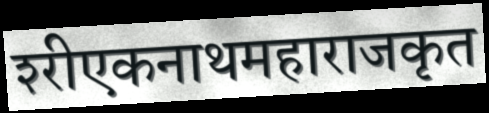
श्रीएकनाथमहाराजकृत